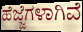
ಹೆಜ್ಜೆಗಳಾಗಿವೆ